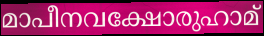
മാപീനവക്ഷോരുഹാമ്